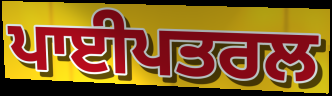
ਪਾਈਪਤਰਲ